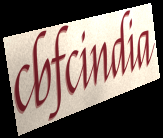
cbfcindia